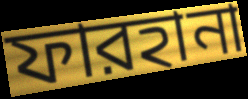
ফারহানা